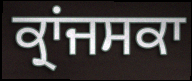
ਕ੍ਰਾਂਜਸਕਾ